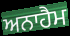
ਅਨਾਹੈਮ